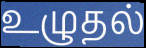
உழுதல்